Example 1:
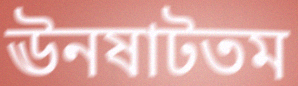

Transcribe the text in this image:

ঊনষাটতম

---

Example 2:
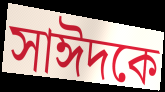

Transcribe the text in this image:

সাঈদকে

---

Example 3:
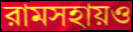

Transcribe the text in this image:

রামসহায়ও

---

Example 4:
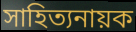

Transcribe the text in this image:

সাহিত্যনায়ক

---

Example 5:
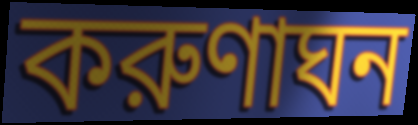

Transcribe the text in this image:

করুণাঘন